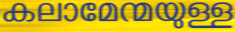
കലാമേന്മയുള്ള